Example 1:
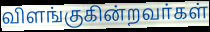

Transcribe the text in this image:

விளங்குகின்றவர்கள்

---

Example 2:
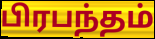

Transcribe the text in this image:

பிரபந்தம்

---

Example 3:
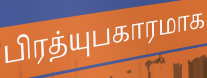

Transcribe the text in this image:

பிரத்யுபகாரமாக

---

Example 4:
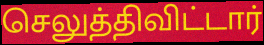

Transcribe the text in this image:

செலுத்திவிட்டார்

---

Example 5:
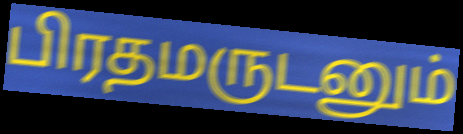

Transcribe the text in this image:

பிரதமருடனும்